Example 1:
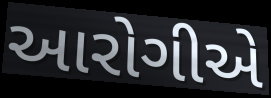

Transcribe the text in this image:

આરોગીએ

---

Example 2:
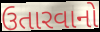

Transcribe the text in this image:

ઉતારવાનો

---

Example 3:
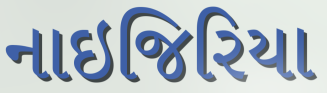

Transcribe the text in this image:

નાઇજિરિયા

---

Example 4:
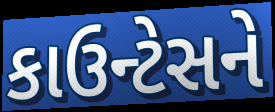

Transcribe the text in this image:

કાઉન્ટેસને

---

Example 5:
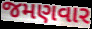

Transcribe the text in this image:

જમણવાર